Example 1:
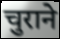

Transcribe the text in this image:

चुराने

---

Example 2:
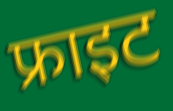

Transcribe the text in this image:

फ्राइट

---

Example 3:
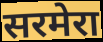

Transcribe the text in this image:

सरमेरा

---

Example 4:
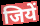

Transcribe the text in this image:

जियें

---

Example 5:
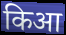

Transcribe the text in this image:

किआ